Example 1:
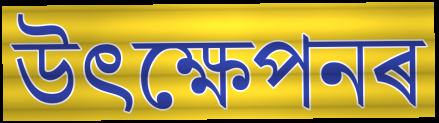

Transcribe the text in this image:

উৎক্ষেপনৰ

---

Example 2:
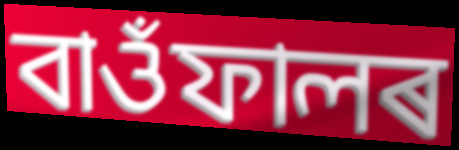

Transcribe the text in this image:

বাওঁফালৰ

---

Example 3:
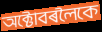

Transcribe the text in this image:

অক্টোবৰলৈকে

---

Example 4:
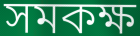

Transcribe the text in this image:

সমকক্ষ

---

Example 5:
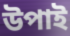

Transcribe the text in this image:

উপাই